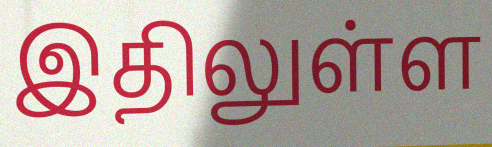
இதிலுள்ள